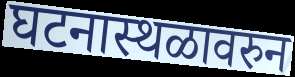
घटनास्थळावरुन